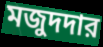
মজুদদার